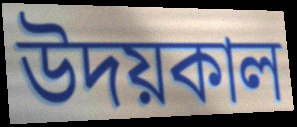
উদয়কাল